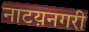
नाटय़नगरी